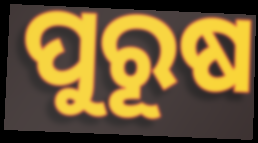
ପୁରୂଷ